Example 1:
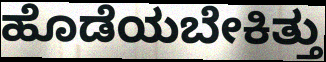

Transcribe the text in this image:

ಹೊಡೆಯಬೇಕಿತ್ತು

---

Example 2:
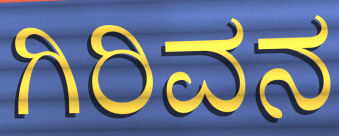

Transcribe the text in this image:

ಗಿರಿವನ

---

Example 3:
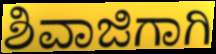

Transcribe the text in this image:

ಶಿವಾಜಿಗಾಗಿ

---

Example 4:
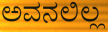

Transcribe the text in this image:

ಅವನಲಿಲ್ಲ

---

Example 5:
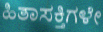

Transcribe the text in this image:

ಹಿತಾಸಕ್ತಿಗಳೇ